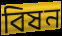
বিষন